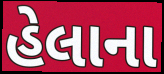
હેલાના